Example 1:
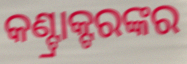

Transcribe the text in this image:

କଣ୍ଟ୍ରାକ୍ଟରଙ୍କର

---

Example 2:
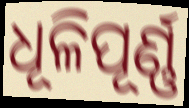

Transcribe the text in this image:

ଧୂଳିପୂର୍ଣ୍ଣ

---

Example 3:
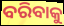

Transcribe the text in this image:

ବରିବାକୁ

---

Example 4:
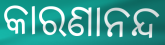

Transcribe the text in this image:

କାରଣାନନ୍ଦ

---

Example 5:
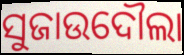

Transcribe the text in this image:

ସୁଜାଉଦୌଲା